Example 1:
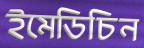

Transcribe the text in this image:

ইমেডিচিন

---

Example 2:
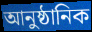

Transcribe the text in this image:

আনুষ্ঠানিক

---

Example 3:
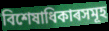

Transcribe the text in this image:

বিশেষাধিকাৰসমূহ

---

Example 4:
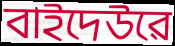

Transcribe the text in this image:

বাইদেউৱে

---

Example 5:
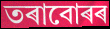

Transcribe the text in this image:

তৰাবোৰৰ